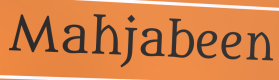
Mahjabeen